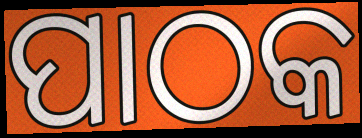
ପାଠକ